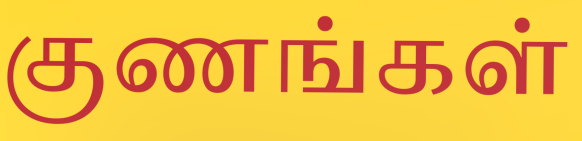
குணங்கள்